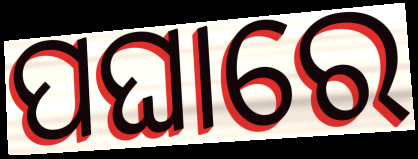
ପଘାରେ